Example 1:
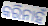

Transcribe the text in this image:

କରିନାହଁ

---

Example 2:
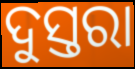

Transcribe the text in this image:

ଦୁସ୍ତରା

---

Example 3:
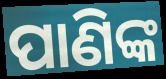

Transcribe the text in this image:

ପାଣିଙ୍କ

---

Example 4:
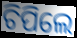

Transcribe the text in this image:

ଚିପିଲେ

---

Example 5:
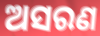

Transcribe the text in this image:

ଅସରଣ